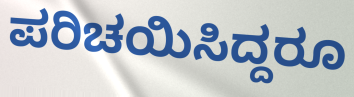
ಪರಿಚಯಿಸಿದ್ದರೂ